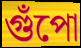
গুঁপো